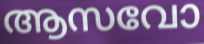
ആസവോ